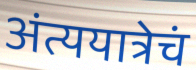
अंत्ययात्रेचं